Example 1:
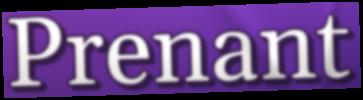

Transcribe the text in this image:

Prenant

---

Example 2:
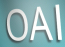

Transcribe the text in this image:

OAI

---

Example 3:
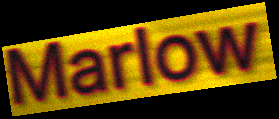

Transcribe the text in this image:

Marlow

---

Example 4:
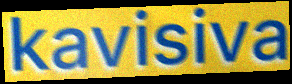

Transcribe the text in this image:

kavisiva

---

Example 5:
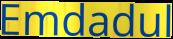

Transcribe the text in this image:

Emdadul